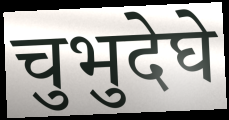
चुभुदेघे